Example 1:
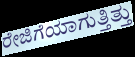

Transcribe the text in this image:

ರೇಜಿಗೆಯಾಗುತ್ತಿತ್ತು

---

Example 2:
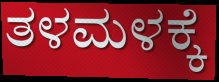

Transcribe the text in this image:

ತಳಮಳಕ್ಕೆ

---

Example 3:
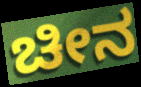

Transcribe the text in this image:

ಚೀನ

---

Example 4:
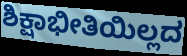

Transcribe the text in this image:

ಶಿಕ್ಷಾಭೀತಿಯಿಲ್ಲದ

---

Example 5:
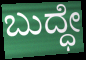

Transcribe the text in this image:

ಬುದ್ಧೇ